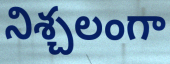
నిశ్చలంగా